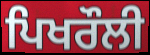
ਪਿਖਰੌਲੀ